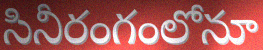
సినీరంగంలోనూ